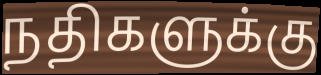
நதிகளுக்கு